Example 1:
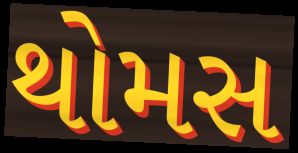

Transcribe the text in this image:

થોમસ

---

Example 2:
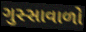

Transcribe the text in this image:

ગુસ્સાવાળો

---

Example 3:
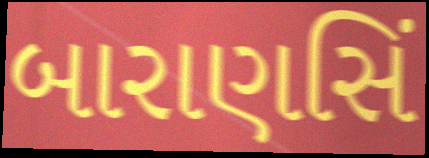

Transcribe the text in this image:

બારાણસિં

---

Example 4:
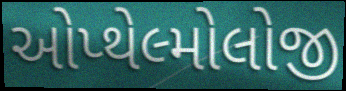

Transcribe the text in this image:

ઓપ્થેલ્મોલોજી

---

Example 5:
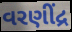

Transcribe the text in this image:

વરણીંદ્ર